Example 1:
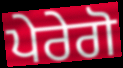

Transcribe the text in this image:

ਪੇਰੇਗੋ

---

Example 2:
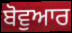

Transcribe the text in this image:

ਬੋਵੁਆਰ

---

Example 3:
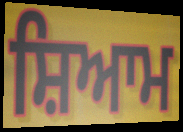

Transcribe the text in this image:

ਸ਼ਿਆਮ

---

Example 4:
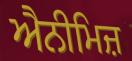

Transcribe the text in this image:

ਐਨੀਮਿਜ਼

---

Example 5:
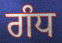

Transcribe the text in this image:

ਗੰਧ